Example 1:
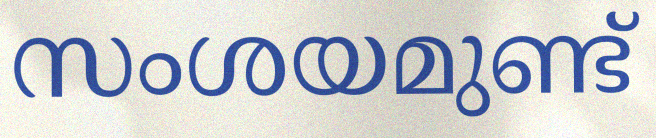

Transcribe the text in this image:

സംശയമുണ്ട്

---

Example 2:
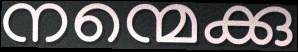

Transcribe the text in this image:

നന്മെക്കു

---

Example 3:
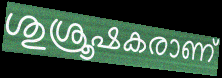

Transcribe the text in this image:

ശുശ്രൂഷകരാണ്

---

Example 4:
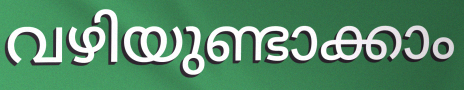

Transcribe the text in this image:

വഴിയുണ്ടാക്കാം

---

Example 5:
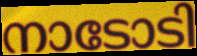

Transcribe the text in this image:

നാടോടി